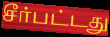
சீர்பட்டது